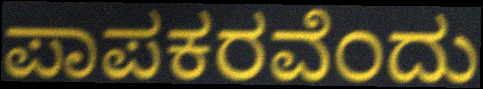
ಪಾಪಕರವೆಂದು